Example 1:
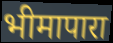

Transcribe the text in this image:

भीमापारा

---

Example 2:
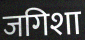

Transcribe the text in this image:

जगिशा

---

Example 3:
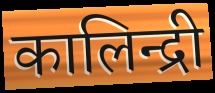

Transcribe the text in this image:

कालिन्द्री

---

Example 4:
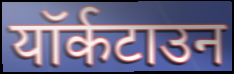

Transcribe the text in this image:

यॉर्कटाउन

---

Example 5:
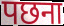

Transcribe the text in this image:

पछना